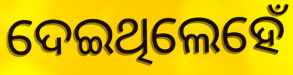
ଦେଇଥିଲେହେଁ